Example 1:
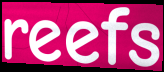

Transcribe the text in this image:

reefs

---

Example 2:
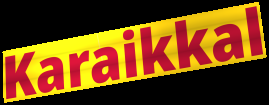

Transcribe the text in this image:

Karaikkal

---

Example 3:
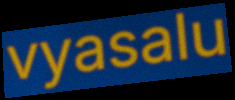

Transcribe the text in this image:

vyasalu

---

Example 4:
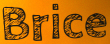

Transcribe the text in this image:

Brice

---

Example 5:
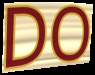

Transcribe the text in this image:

DO